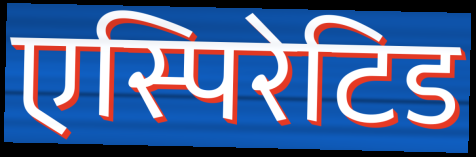
एस्पिरेटिड